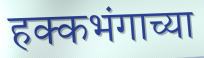
हक्कभंगाच्या